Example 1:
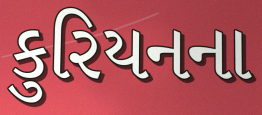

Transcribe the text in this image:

કુરિયનના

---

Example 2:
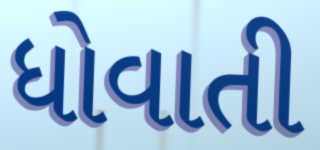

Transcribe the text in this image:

ધોવાતી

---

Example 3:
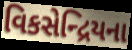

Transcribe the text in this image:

વિકસેન્દ્રિયના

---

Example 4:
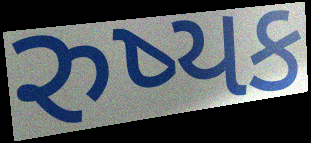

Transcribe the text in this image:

રુષ્યક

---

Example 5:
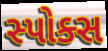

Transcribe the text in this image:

સ્પોક્સ